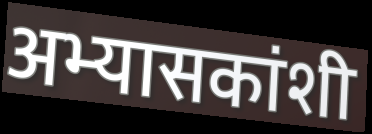
अभ्यासकांशी